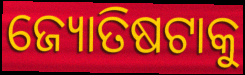
ଜ୍ୟୋତିଷଟାକୁ